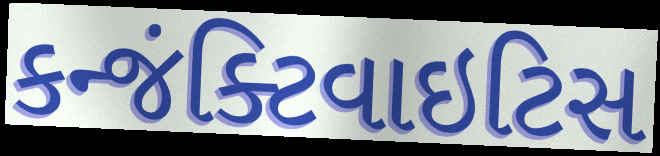
કન્જંક્ટિવાઇટિસ